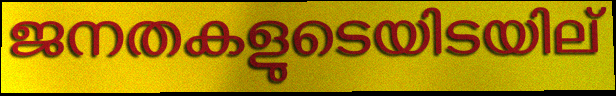
ജനതകളുടെയിടയില്